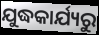
ଯୁଦ୍ଧକାର୍ଯ୍ୟରୁ